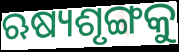
ଋଷ୍ୟଶୃଙ୍ଗକୁ